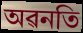
অৱনতি